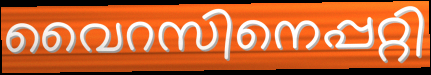
വൈറസിനെപ്പറ്റി